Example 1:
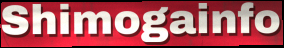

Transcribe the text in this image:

Shimogainfo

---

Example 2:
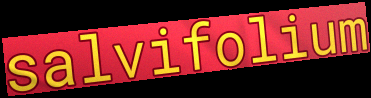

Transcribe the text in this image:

salvifolium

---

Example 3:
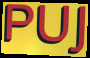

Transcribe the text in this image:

PUJ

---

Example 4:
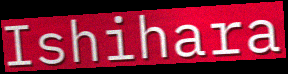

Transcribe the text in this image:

Ishihara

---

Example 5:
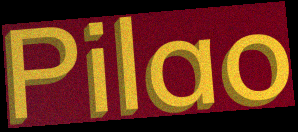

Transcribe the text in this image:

Pilao